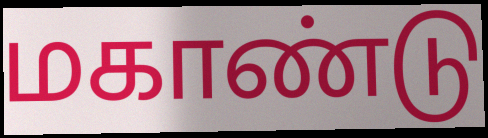
மகாண்டு